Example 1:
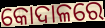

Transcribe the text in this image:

କୋଦାଳରେ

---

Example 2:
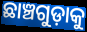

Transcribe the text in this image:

ଛାଞ୍ଚଗୁଡ଼ାକୁ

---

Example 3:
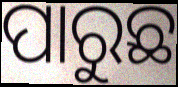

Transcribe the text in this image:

ପାରୁଛ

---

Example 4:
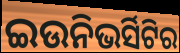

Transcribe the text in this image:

ଇଉନିଭର୍ସିଟିର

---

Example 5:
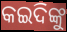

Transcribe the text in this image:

କଇଦିଙ୍କୁ